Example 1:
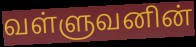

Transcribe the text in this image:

வள்ளுவனின்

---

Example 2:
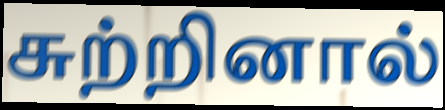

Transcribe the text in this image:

சுற்றினால்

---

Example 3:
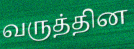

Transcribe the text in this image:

வருத்தின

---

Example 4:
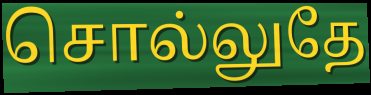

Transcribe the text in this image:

சொல்லுதே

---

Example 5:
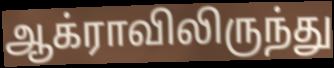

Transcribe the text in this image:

ஆக்ராவிலிருந்து